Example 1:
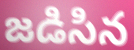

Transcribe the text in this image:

జడిసిన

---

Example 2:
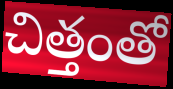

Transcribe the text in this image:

చిత్తంతో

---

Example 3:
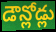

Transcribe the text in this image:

డౌన్లోడ్లు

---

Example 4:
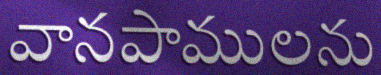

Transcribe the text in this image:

వానపాములను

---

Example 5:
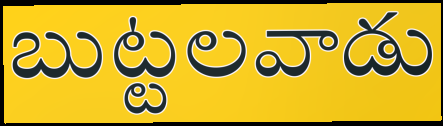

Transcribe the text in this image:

బుట్టలవాడు